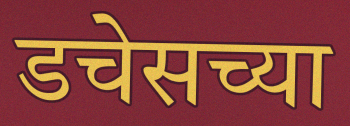
डचेसच्या